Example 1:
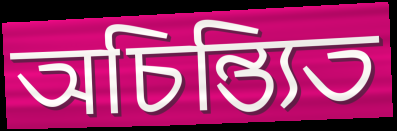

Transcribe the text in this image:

অচিন্ত্যিত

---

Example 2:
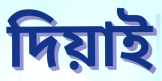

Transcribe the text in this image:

দিয়াই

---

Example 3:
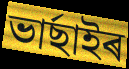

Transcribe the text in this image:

ভাৰ্ছাইৰ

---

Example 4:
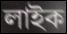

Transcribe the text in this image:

লাইক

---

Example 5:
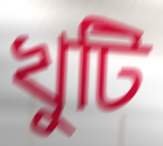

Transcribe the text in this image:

খুটি